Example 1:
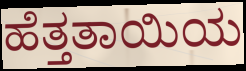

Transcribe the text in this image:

ಹೆತ್ತತಾಯಿಯ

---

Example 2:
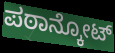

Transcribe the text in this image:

ಪಠಾನ್ಕೋಟ್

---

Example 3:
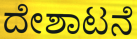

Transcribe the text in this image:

ದೇಶಾಟನೆ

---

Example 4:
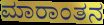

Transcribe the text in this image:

ಮಾರಾಂತನ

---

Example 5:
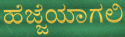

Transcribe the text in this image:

ಹೆಜ್ಜೆಯಾಗಲಿ